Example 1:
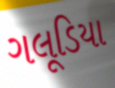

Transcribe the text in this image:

ગલૂડિયા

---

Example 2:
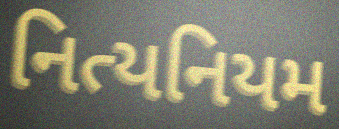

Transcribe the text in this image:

નિત્યનિયમ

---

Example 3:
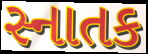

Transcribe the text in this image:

સ્નાતક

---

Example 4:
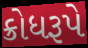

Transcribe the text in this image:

ક્રોધરૂપે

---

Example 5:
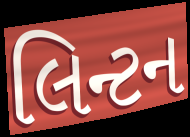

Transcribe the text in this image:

લિન્ટન